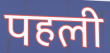
पहली